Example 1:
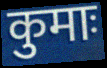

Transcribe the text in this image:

कुमाः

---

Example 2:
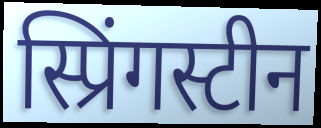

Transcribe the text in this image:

स्प्रिंगस्टीन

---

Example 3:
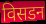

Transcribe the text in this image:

विसडन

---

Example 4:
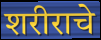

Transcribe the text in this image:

शरीराचे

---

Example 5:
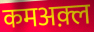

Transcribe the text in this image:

कमअक़्ल